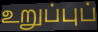
உறுப்புப்